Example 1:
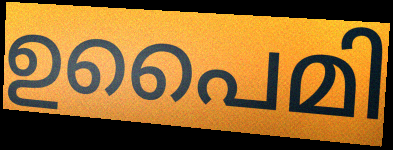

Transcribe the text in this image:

ഉപൈമി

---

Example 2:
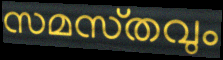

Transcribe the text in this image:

സമസ്‌തവും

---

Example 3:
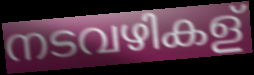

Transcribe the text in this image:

നടവഴികള്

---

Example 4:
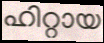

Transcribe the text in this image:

ഹിറ്റായ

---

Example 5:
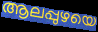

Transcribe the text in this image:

ആലപ്പുഴയെ